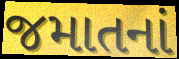
જમાતનાં